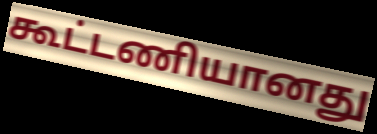
கூட்டணியானது